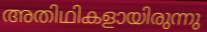
അതിഥികളായിരുന്നു